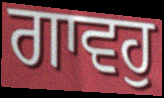
ਗਾਵਹੁ